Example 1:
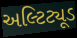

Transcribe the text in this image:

અલ્ટિટ્યૂડ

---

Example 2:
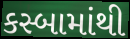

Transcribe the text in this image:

કસ્બામાંથી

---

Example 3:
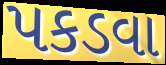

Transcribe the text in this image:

પકડવા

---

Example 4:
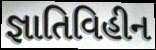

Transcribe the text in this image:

જ્ઞાતિવિહીન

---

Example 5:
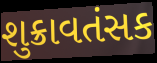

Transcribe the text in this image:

શુક્રાવતંસક